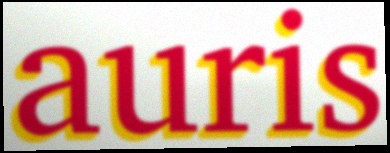
auris